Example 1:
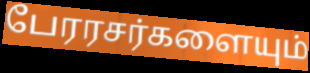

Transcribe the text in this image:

பேரரசர்களையும்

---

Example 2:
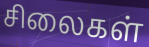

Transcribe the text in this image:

சிலைகள்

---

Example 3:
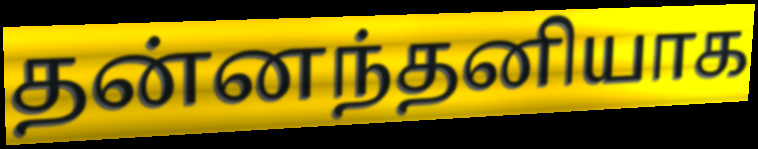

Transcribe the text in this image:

தன்னந்தனியாக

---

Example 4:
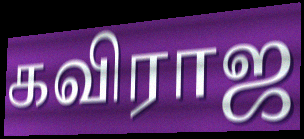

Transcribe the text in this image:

கவிராஜ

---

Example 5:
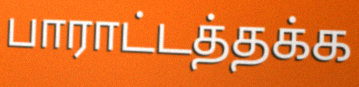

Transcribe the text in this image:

பாராட்டத்தக்க